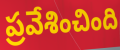
ప్రవేశించింది